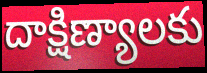
దాక్షిణ్యాలకు